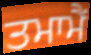
ਤਮਾਮੈਂ